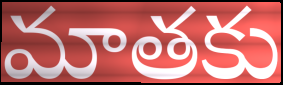
మాతకు